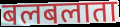
बलबलाता